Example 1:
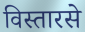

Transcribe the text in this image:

विस्तारसे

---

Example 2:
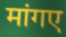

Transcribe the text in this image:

मांगए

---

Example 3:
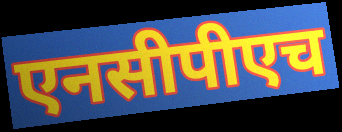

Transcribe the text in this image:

एनसीपीएच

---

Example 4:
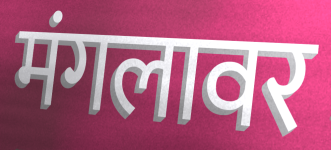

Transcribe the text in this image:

मंगलावर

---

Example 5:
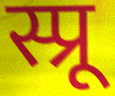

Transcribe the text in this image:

स्प्रू